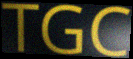
TGC